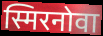
स्मिरनोवा